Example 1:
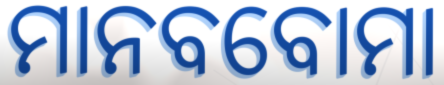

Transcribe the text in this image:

ମାନବବୋମା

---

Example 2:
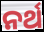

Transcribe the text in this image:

ନର୍ଥ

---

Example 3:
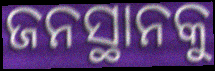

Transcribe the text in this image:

ଜନସ୍ଥାନକୁ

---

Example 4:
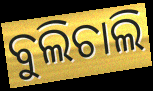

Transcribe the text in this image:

ବୁଲିଚାଲି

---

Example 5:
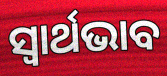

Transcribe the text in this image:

ସ୍ଵାର୍ଥଭାବ